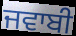
ਜਵਾਬੀ